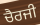
ਚੈਰਜੀ